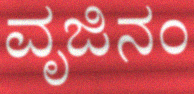
ವೃಜಿನಂ